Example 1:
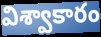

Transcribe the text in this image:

విశ్వాకారం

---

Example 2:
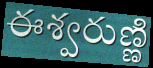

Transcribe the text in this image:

ఈశ్వరుణ్ణి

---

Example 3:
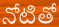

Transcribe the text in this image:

నోటితో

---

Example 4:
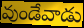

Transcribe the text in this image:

వుండేవాడు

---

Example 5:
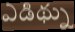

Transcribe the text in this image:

ఎడిథ్ను